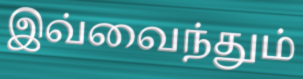
இவ்வைந்தும்